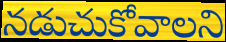
నడుచుకోవాలని